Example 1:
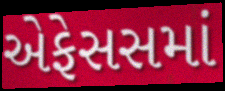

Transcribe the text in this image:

એફેસસમાં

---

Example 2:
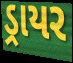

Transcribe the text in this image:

ડ્રાયર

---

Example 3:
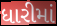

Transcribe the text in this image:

ધારીમાં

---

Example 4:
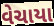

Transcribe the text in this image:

વેચાયા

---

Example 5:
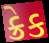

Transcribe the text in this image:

ક્રેક